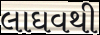
લાઘવથી